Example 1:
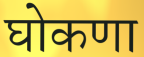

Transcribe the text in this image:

घोकणा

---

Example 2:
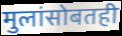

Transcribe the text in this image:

मुलांसोबतही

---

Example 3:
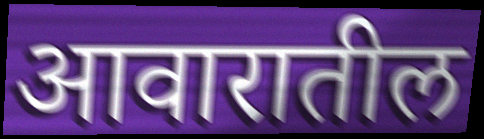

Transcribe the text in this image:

आवारातील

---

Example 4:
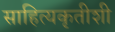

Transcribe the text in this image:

साहित्यकृतीशी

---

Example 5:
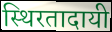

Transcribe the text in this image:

स्थिरतादायी